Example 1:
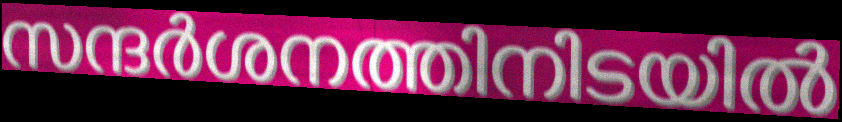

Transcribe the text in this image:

സന്ദർശനത്തിനിടയിൽ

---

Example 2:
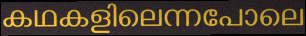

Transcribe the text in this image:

കഥകളിലെന്നപോലെ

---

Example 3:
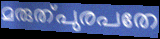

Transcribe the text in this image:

മരുത്പുരപതേ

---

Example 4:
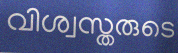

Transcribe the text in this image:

വിശ്വസ്തരുടെ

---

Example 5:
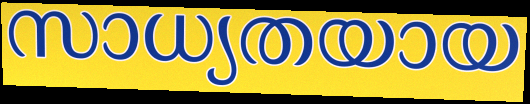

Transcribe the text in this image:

സാധ്യതയായ